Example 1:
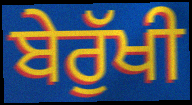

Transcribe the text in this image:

ਬੇਰੁੱਖੀ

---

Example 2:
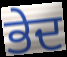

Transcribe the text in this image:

ਭੇਦ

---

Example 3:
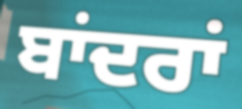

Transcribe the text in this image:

ਬਾਂਦਰਾਂ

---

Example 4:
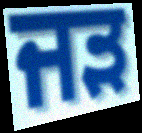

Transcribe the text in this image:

ਜੜ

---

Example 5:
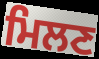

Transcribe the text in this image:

ਮਿਲਣ